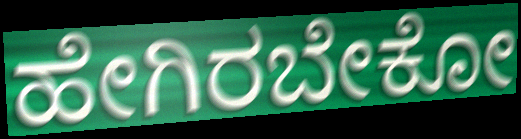
ಹೇಗಿರಬೇಕೋ